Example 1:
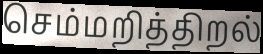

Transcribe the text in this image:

செம்மறித்திறல்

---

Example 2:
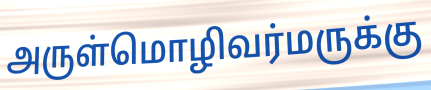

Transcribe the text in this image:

அருள்மொழிவர்மருக்கு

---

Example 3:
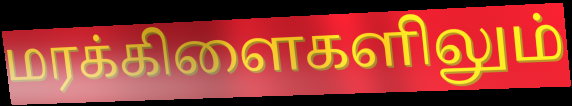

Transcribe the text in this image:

மரக்கிளைகளிலும்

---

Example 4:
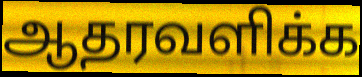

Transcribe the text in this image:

ஆதரவளிக்க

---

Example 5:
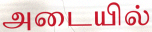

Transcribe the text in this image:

அடையில்